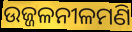
ଉଜ୍ଜଳନୀଳମଣି